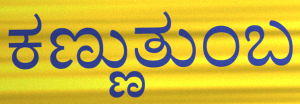
ಕಣ್ಣುತುಂಬ